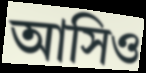
আসিও